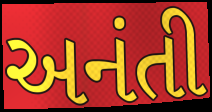
અનંતી